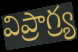
విప్రాగ్ర్య